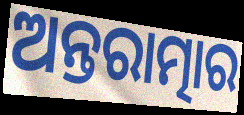
ଅନ୍ତରାତ୍ମାର